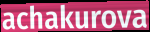
achakurova